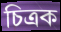
চিত্ৰক